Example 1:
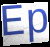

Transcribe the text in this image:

Ep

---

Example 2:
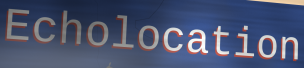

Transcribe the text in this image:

Echolocation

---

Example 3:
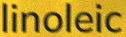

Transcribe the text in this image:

linoleic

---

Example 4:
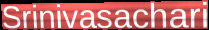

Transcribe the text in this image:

Srinivasachari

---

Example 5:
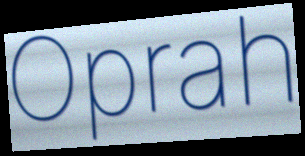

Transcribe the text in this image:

Oprah